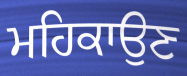
ਮਹਿਕਾਉਣ